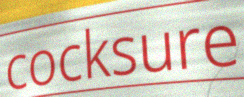
cocksure